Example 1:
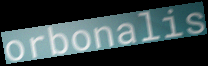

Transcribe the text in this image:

orbonalis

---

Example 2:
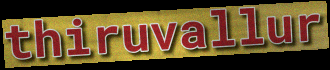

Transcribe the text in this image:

thiruvallur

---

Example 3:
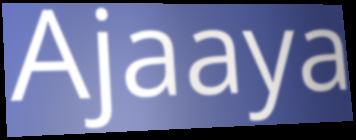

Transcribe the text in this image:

Ajaaya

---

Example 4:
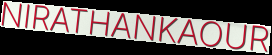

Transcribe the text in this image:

NIRATHANKAOUR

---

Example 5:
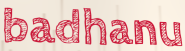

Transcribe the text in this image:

badhanu